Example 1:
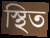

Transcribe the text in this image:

স্থিত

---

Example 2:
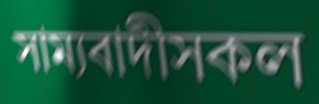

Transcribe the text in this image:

সাম্যবাদীসকল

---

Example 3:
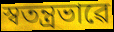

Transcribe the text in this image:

স্বতন্ত্ৰভাৱে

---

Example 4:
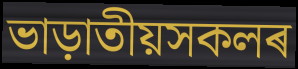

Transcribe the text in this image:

ভাড়াতীয়সকলৰ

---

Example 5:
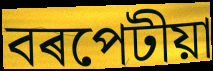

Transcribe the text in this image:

বৰপেটীয়া